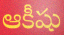
ఆకీషు